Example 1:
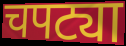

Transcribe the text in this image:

चपट्या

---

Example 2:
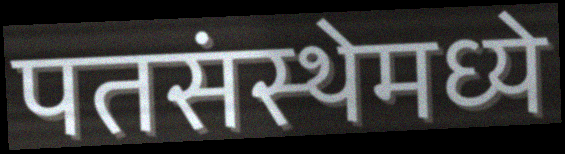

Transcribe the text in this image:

पतसंस्थेमध्ये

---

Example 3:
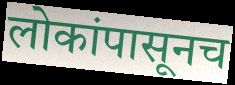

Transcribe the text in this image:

लोकांपासूनच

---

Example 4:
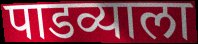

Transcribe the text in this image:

पाडव्याला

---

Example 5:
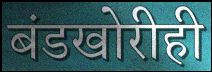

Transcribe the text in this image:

बंडखोरीही